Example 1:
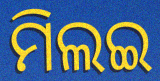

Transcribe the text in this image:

ମିଲଇ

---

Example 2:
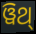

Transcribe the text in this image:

ୱିଥ୍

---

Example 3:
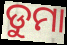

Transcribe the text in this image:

ଡୁମା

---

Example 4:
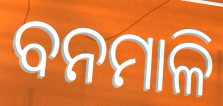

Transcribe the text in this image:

ବନମାଳି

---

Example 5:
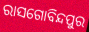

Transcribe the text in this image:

ରାସଗୋବିନ୍ଦପୁର